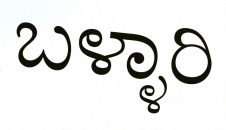
ಬಳ್ಳಾರಿ